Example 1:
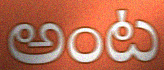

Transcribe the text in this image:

అంట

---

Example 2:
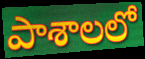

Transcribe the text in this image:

పాశాలలో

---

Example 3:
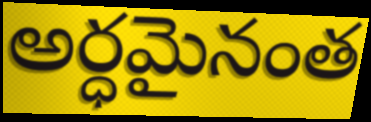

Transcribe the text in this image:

అర్ధమైనంత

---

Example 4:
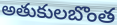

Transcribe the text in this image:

అతుకులబొంత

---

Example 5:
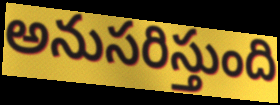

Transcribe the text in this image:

అనుసరిస్తుంది